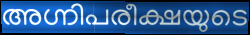
അഗ്നിപരീക്ഷയുടെ